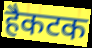
हैकटक